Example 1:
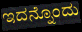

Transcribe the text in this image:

ಇದನ್ನೊಂದು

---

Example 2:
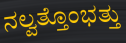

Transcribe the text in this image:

ನಲ್ವತ್ತೊಂಭತ್ತು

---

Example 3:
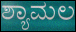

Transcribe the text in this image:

ಶ್ಯಾಮಲ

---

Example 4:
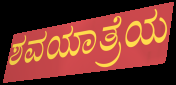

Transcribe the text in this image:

ಶವಯಾತ್ರೆಯ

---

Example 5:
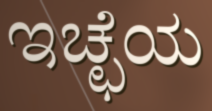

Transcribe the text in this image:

ಇಚ್ಛೆಯ